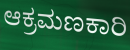
ಆಕ್ರಮಣಕಾರಿ